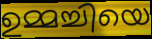
ഉമ്മച്ചിയെ